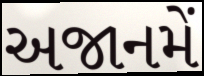
અજાનમેં